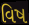
વિષ